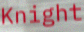
Knight